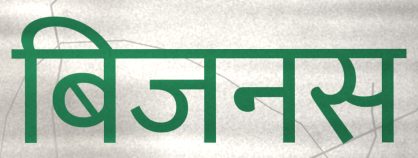
बिजनस